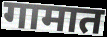
गामात